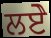
ਲਏੇ